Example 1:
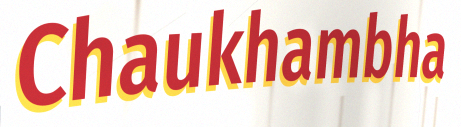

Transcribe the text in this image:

Chaukhambha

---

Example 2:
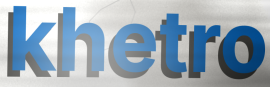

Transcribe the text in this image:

khetro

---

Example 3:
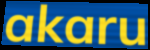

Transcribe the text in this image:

akaru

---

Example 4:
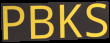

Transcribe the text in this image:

PBKS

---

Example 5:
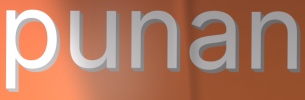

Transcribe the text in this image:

punan